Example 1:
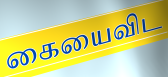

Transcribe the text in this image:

கையைவிட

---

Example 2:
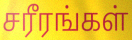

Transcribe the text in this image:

சரீரங்கள்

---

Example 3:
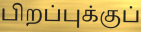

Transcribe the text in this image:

பிறப்புக்குப்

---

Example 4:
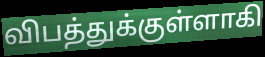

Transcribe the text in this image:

விபத்துக்குள்ளாகி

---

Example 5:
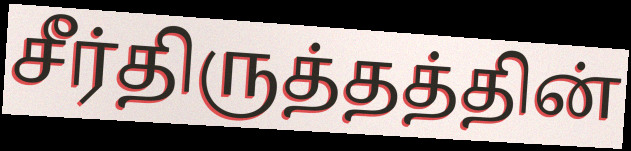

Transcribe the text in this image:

சீர்திருத்தத்தின்